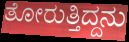
ತೋರುತ್ತಿದ್ದನು